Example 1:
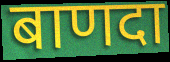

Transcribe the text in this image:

बाणदा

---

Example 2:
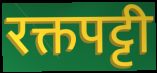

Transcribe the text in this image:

रक्तपट्टी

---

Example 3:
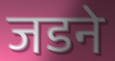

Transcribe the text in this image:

जडने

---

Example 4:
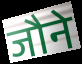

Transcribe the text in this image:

जौने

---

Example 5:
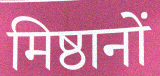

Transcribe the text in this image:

मिष्ठानों